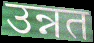
उन्नत